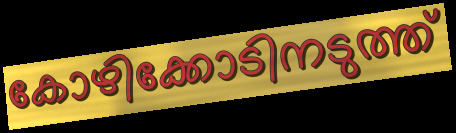
കോഴിക്കോടിനടുത്ത്